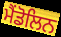
ਮੈਂਡੋਲਿਨ